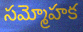
సమ్మోహక